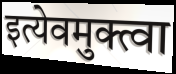
इत्येवमुक्त्वा